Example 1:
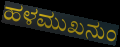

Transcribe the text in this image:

ಹಳಮುಖನುಂ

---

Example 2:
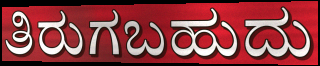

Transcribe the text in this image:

ತಿರುಗಬಹುದು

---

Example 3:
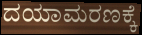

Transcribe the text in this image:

ದಯಾಮರಣಕ್ಕೆ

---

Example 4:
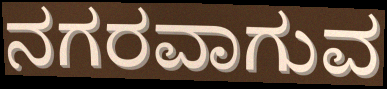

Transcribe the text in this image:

ನಗರವಾಗುವ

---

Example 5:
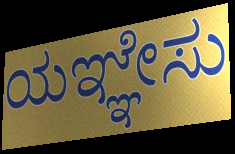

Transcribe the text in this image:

ಯಞ್ಞೇಸು